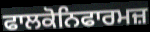
ਫਾਲਕੋਨਿਫਾਰਮਜ਼